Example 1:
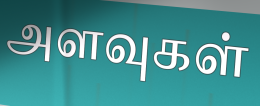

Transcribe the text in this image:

அளவுகள்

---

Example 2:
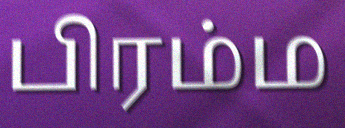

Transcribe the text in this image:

பிரம்ம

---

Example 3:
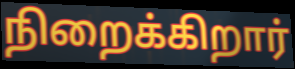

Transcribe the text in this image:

நிறைக்கிறார்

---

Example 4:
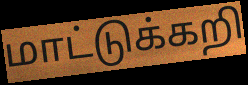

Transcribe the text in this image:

மாட்டுக்கறி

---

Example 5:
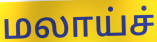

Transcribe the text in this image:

மலாய்ச்